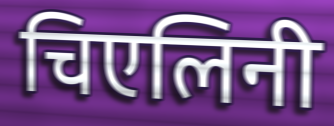
चिएलिनी